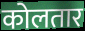
कोलतार